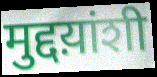
मुद्दय़ांशी